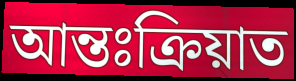
আন্তঃক্ৰিয়াত